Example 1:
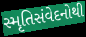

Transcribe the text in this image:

સ્મૃતિસંવેદનોથી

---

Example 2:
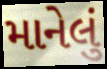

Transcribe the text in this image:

માનેલું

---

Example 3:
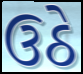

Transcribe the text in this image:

ઉઠે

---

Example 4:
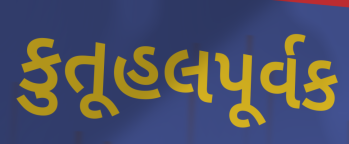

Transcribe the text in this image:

કુતૂહલપૂર્વક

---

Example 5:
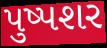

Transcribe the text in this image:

પુષ્પશર